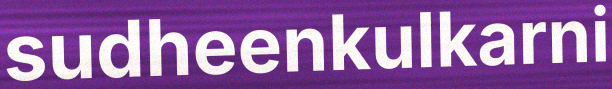
sudheenkulkarni